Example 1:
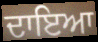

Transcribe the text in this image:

ਦਾਇਆ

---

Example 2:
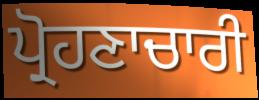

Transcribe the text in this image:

ਪ੍ਰੋਹਣਾਚਾਰੀ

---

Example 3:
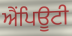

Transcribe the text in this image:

ਐਂਪਿਊਟੀ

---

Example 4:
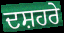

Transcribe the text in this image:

ਦਸ਼ਹਰੇ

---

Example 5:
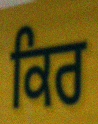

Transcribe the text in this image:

ਕਿਰ